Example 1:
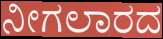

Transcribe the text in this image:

ನೀಗಲಾರದ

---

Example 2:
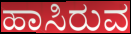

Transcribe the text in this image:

ಹಾಸಿರುವ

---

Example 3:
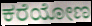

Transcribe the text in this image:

ಕರೆಯೋಣ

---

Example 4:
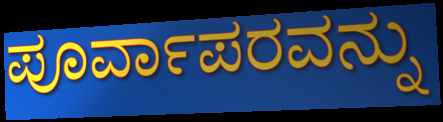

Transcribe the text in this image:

ಪೂರ್ವಾಪರವನ್ನು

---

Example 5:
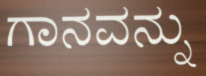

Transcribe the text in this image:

ಗಾನವನ್ನು